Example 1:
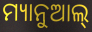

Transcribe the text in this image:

ମ୍ୟାନୁଆଲ୍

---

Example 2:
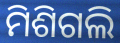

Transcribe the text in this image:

ମିଶିଗଲି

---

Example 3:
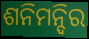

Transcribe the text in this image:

ଶନିମନ୍ଦିର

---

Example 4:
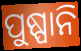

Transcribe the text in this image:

ପୁଷ୍ପାନି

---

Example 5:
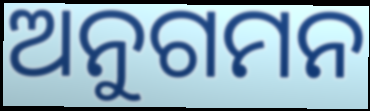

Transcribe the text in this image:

ଅନୁଗମନ